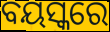
ବୟସ୍କରେ